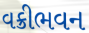
વક્રીભવન